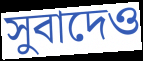
সুবাদেও